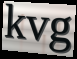
kvg